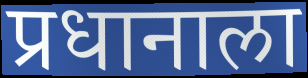
प्रधानाला